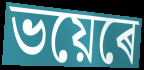
ভয়েৰে